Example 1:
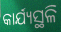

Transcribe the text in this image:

କାର୍ଯ୍ୟସ୍ଥଳି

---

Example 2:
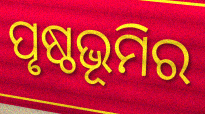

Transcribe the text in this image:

ପୃଷ୍ଠଭୂମିର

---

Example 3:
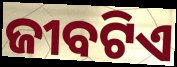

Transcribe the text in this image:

ଜୀବଟିଏ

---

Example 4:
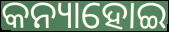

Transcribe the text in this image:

କନ୍ୟାହୋଇ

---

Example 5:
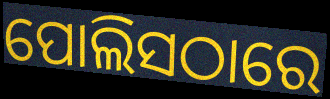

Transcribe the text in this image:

ପୋଲିସଠାରେ